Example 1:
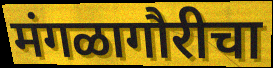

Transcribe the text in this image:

मंगळागौरीचा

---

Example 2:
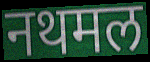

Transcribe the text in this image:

नथमल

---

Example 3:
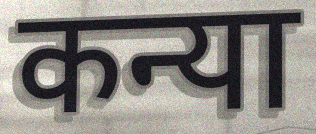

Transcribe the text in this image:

कन्या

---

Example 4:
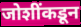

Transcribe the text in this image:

जोशींकडून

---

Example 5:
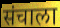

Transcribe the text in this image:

संचाला